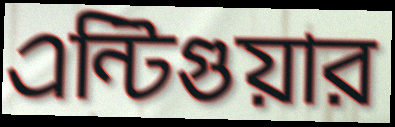
এন্টিগুয়ার